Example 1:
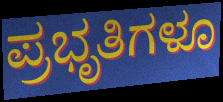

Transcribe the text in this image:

ಪ್ರಭೃತಿಗಳೂ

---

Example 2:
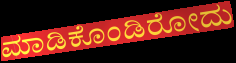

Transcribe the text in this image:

ಮಾಡಿಕೊಂಡಿರೋದು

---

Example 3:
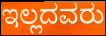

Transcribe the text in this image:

ಇಲ್ಲದವರು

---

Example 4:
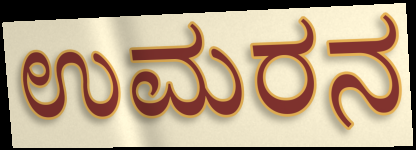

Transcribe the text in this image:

ಉಮರನ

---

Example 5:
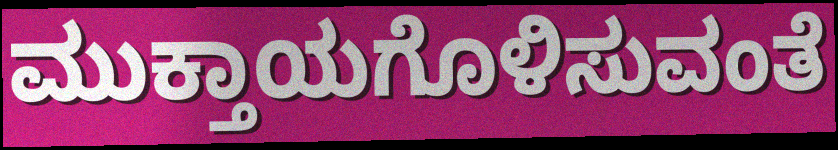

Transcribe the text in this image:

ಮುಕ್ತಾಯಗೊಳಿಸುವಂತೆ